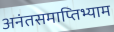
अनंतसमाप्तिभ्याम